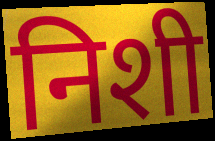
निशी